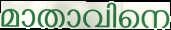
മാതാവിനെ